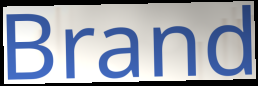
Brand